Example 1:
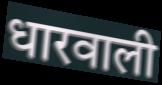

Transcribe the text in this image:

धारवाली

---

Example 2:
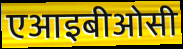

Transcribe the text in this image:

एआइबीओसी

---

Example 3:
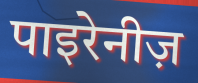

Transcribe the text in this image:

पाइरेनीज़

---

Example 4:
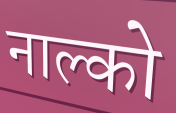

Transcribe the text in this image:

नाल्को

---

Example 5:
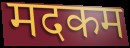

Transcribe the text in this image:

मदकम